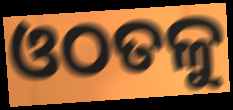
ଓଠତଳୁ